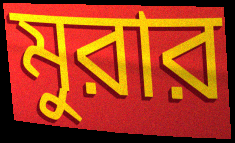
মুরার